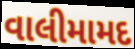
વાલીમામદ